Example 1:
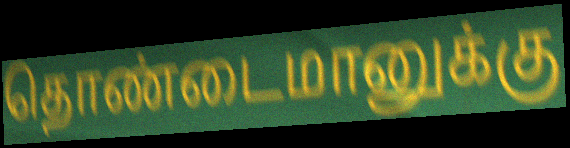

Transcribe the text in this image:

தொண்டைமானுக்கு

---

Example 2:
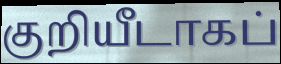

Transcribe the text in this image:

குறியீடாகப்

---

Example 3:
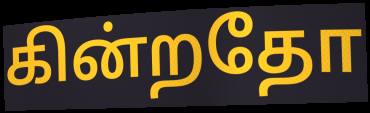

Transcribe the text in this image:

கின்றதோ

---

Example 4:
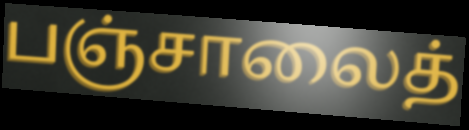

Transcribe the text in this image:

பஞ்சாலைத்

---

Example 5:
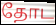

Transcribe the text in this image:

தோட